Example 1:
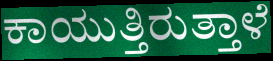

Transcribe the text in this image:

ಕಾಯುತ್ತಿರುತ್ತಾಳೆ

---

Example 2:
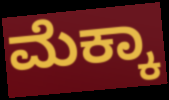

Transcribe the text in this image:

ಮೆಕ್ಕಾ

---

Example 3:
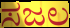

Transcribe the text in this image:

ಸಜಲ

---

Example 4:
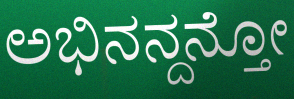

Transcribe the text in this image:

ಅಭಿನನ್ದನ್ತೋ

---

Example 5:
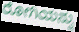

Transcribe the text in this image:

ರೋಗಿಯನ್ನು